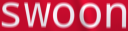
swoon